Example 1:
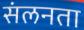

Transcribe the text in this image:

संलनता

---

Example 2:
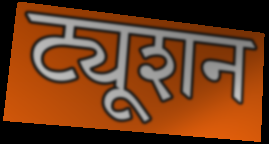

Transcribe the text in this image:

ट्यूशन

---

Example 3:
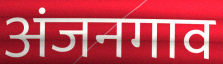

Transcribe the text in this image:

अंजनगाव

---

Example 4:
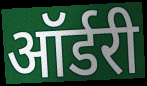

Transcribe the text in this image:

ऑर्डरी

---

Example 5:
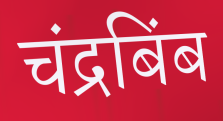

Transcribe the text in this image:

चंद्रबिंब